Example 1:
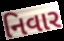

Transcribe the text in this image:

નિવાર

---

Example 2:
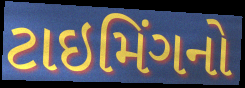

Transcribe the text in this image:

ટાઇમિંગનો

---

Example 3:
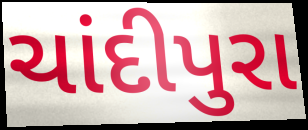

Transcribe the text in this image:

ચાંદીપુરા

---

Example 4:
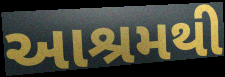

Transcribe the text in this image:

આશ્રમથી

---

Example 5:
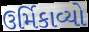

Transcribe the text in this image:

ઉર્મિકાવ્યો